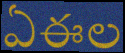
ఏఈల